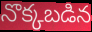
నొక్కబడిన